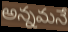
అన్నమనే